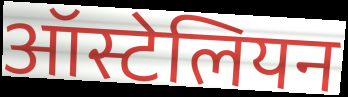
ऑस्टेलियन